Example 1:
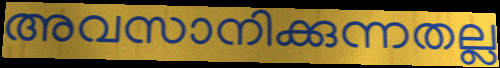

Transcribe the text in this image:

അവസാനിക്കുന്നതല്ല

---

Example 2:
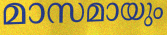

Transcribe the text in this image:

മാസമായും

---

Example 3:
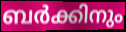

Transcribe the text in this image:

ബർക്കിനും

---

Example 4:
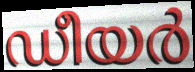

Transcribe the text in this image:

ഡീയർ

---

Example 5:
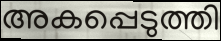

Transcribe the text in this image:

അകപ്പെടുത്തി